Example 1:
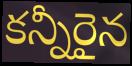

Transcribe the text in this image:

కన్నీరైన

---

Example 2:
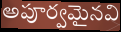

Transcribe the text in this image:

అపూర్వమైనవి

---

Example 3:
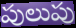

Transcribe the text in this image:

పులుపు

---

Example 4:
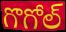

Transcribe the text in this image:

గొగోల్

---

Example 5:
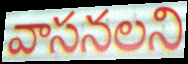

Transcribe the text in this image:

వాసనలని